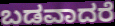
ಬಡವಾದರೆ